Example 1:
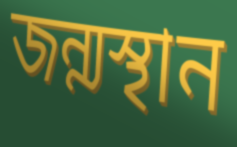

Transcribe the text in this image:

জন্মস্থান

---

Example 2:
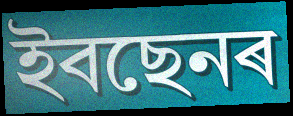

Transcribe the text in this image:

ইবছেনৰ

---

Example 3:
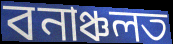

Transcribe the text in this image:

বনাঞ্চলত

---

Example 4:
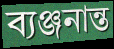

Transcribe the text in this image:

ব্যঞ্জনান্ত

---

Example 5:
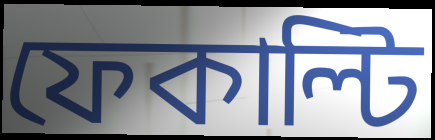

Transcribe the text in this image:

ফেকাল্টি